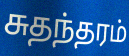
சுதந்தரம்